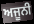
ਅਜੂਨੀ